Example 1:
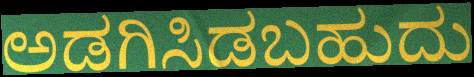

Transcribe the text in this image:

ಅಡಗಿಸಿಡಬಹುದು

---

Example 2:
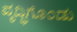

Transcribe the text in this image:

ವೃದ್ಧಿಗೊಂಡು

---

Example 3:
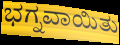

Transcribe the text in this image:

ಭಗ್ನವಾಯಿತು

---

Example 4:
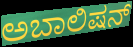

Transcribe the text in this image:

ಅಬಾಲಿಷನ್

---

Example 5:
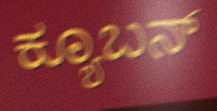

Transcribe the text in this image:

ಕ್ಯೂಬನ್